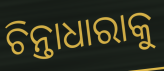
ଚିନ୍ତାଧାରାକୁ